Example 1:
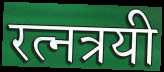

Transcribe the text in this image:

रत्नत्रयी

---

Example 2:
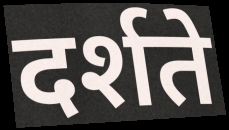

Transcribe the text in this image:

दर्शते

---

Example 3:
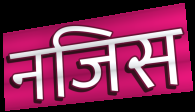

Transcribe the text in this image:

नजिस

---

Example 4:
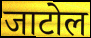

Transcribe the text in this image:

जाटोल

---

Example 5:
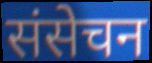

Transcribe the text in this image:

संसेचन